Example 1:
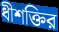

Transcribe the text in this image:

ধীশক্তির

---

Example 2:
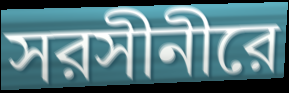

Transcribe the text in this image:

সরসীনীরে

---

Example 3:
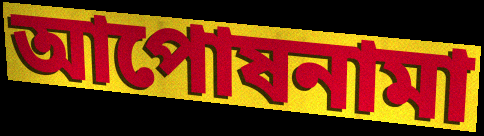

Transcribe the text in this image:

আপোষনামা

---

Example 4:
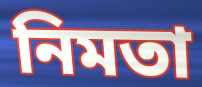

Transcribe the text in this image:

নিমতা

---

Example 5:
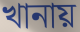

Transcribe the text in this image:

খানায়